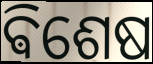
ଵିଶେଷ